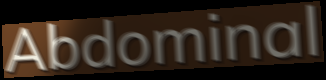
Abdominal